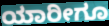
ಯಾರೀಗೂ